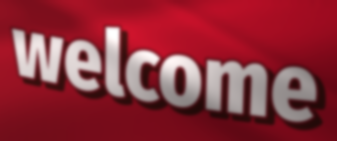
welcome